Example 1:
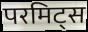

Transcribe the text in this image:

परमिट्स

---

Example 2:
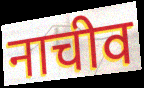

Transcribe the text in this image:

नाचीव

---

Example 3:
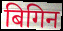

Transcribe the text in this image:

बिगिन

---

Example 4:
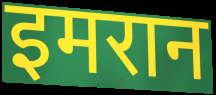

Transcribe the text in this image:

इमरान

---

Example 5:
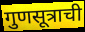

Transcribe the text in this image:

गुणसूत्राची